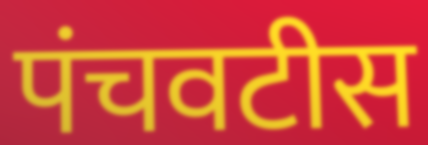
पंचवटीस